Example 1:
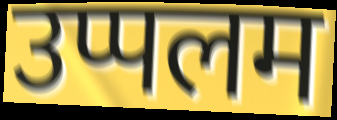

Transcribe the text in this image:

उप्पलम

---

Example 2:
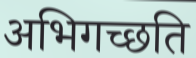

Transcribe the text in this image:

अभिगच्छति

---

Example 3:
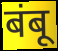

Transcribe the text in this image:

बंबू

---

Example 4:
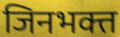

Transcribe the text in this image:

जिनभक्त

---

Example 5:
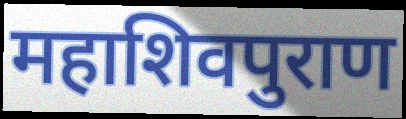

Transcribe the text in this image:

महाशिवपुराण